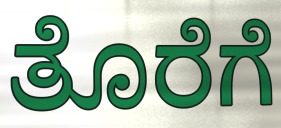
ತೊರೆಗೆ